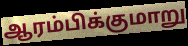
ஆரம்பிக்குமாறு